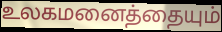
உலகமனைத்தையும்